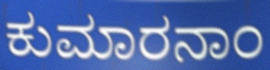
ಕುಮಾರನಾಂ